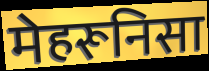
मेहरूनिसा